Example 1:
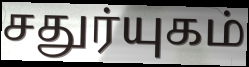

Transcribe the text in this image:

சதுர்யுகம்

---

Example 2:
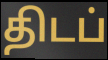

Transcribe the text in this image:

திடப்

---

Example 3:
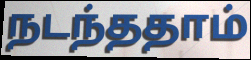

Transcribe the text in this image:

நடந்ததாம்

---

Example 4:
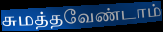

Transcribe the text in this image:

சுமத்தவேண்டாம்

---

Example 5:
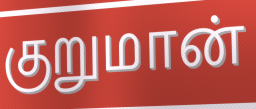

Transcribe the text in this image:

குறுமான்